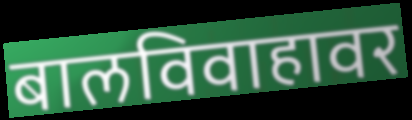
बालविवाहावर